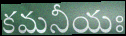
కమనీయః